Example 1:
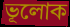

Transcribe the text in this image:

ভূলোক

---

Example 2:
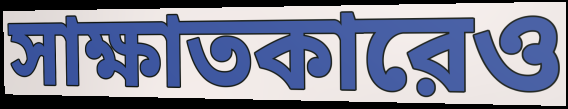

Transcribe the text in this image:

সাক্ষাতকারেও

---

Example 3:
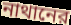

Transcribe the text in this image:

নাথানের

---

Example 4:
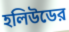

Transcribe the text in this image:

হলিউডের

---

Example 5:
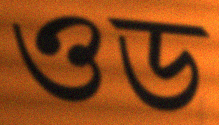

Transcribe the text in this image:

ওড